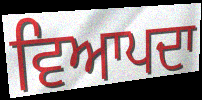
ਵਿਆਪਦਾ